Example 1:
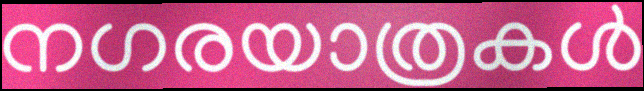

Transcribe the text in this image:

നഗരയാത്രകൾ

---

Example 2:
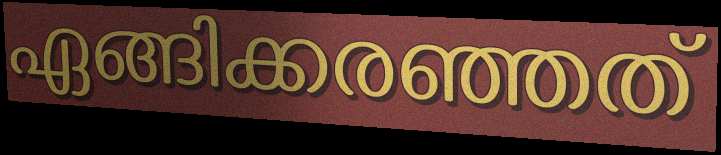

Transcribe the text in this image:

ഏങ്ങിക്കരഞ്ഞത്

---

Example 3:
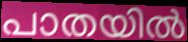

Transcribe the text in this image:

പാതയിൽ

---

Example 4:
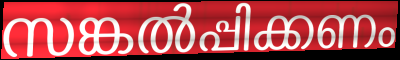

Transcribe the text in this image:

സങ്കൽപ്പിക്കണം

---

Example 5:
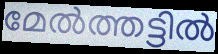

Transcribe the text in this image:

മേൽത്തട്ടിൽ